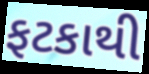
ફટકાથી